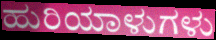
ಹುರಿಯಾಳುಗಳು